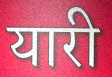
यारी